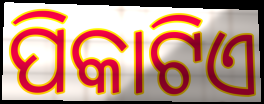
ପିକାଟିଏ